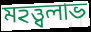
মহত্ত্বলাভ